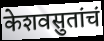
केशवसुतांचं